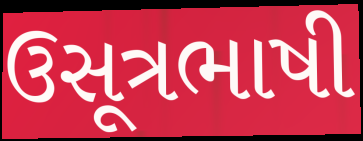
ઉસૂત્રભાષી